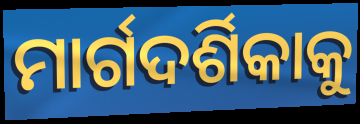
ମାର୍ଗଦର୍ଶିକାକୁ